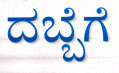
ದಬ್ಬೆಗೆ